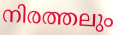
നിരത്തലും